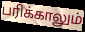
பரிக்காலும்